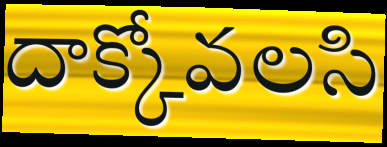
దాక్కోవలసి